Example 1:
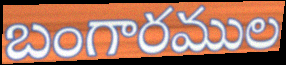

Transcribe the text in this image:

బంగారముల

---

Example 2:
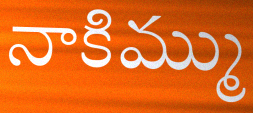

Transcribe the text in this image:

నాకిమ్ము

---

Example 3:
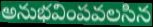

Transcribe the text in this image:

అనుభవింపవలసిన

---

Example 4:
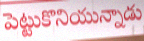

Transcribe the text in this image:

పెట్టుకొనియున్నాడు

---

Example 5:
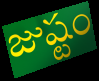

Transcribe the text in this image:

జుష్టం